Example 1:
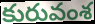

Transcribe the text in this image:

కురువంశ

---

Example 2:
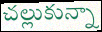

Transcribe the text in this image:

చల్లుకున్నా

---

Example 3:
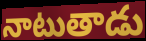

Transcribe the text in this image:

నాటుతాడు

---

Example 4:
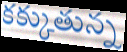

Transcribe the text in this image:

కక్కుతున్న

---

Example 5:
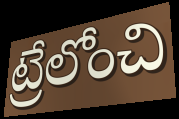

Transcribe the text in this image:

ట్రేలోంచి